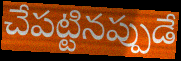
చేపట్టినప్పుడే